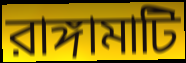
রাঙ্গামাটি